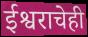
ईश्वराचेही